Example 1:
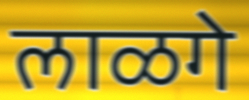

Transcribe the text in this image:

लाळगे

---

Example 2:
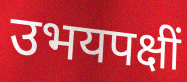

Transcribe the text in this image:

उभयपक्षीं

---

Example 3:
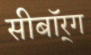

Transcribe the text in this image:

सीबॉर्ग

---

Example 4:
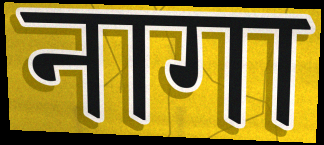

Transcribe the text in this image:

नागा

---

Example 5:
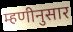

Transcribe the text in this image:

म्हणीनुसार